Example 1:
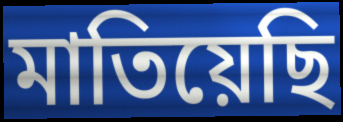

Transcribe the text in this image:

মাতিয়েছি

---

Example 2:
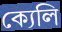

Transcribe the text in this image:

ক্যেলি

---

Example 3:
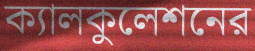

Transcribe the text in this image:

ক্যালকুলেশনের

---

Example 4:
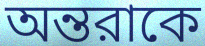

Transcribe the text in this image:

অন্তরাকে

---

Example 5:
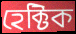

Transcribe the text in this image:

হেক্টিক